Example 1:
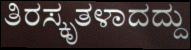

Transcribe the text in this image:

ತಿರಸ್ಕೃತಳಾದದ್ದು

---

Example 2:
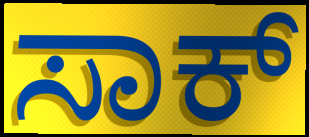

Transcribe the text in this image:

ಸಾಕ್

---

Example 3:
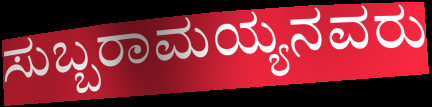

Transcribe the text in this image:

ಸುಬ್ಬರಾಮಯ್ಯನವರು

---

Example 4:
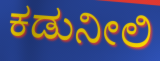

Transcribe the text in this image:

ಕಡುನೀಲಿ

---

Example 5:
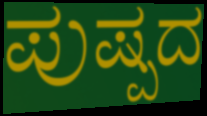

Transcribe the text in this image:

ಪುಷ್ಪದ